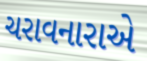
ચરાવનારાએ